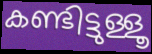
കണ്ടിട്ടുള്ളൂ